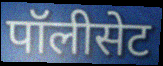
पॉलीसेट